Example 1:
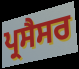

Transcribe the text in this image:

ਪ੍ਰਸੈਸਰ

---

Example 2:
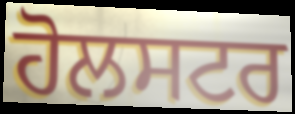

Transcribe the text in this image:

ਹੋਲਸਟਰ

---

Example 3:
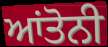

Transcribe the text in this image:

ਆਂਤੋਨੀ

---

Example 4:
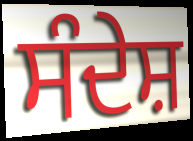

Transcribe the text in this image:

ਸੰਦੇਸ਼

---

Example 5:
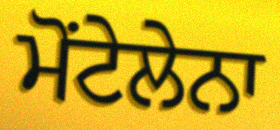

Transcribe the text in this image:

ਮੋਂਟੇਲੇਨਾ